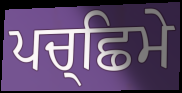
ਪਚ੍ਛਿਮੇ